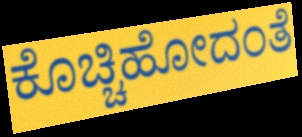
ಕೊಚ್ಚಿಹೋದಂತೆ